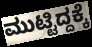
ಮುಟ್ಟಿದ್ದಕ್ಕೆ